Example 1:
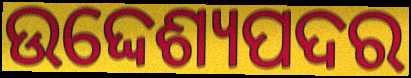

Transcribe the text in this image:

ଉଦ୍ଦେଶ୍ୟପଦର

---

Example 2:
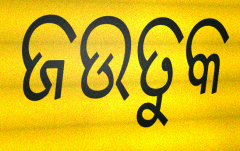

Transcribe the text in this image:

ଜଉତୁକ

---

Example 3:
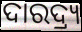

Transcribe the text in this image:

ଦାରଦ୍ର୍ୟ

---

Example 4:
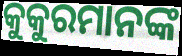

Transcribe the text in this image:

କୁକୁରମାନଙ୍କ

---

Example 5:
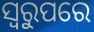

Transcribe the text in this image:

ସ୍ୱରୁପରେ